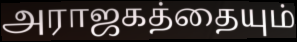
அராஜகத்தையும்